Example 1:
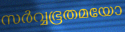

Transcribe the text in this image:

സർവ്വഭൂതമയോ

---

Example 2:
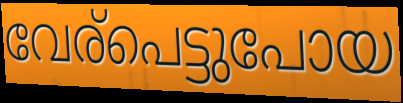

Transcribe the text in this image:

വേര്പെട്ടുപോയ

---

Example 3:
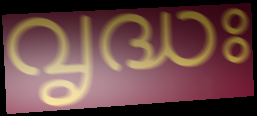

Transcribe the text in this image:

വൃദ്ധഃ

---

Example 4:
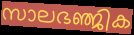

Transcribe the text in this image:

സാലഭഞ്ജിക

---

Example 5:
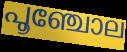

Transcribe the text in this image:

പൂഞ്ചോല